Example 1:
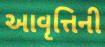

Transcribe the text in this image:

આવૃત્તિની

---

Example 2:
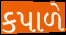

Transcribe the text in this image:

કપાળે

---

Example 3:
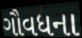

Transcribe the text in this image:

ગૌવધના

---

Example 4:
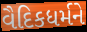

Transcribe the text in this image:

વૈદિકધર્મને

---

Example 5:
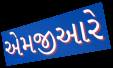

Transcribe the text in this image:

એમજીઆરે